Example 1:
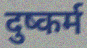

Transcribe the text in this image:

दुष्कर्म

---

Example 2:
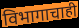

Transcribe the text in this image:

विभागाचाही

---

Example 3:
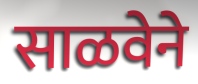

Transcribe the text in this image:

साळवेने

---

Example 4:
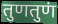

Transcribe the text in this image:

तुणतुणं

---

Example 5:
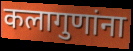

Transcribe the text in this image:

कलागुणांना